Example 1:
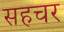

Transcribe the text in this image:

सहचर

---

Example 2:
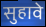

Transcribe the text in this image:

सुहावे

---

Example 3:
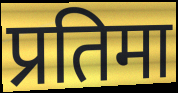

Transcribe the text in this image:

प्रतिमा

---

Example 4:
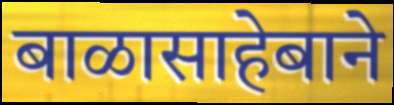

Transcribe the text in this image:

बाळासाहेबाने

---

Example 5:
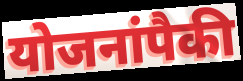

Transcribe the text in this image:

योजनांपैकी